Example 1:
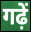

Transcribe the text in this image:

गढ़ें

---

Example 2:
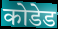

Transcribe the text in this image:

कोडेड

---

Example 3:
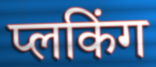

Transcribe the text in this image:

प्लकिंग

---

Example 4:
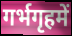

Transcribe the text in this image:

गर्भगृहमें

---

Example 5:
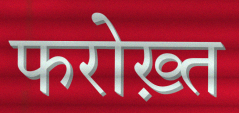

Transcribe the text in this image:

फरोख़्त